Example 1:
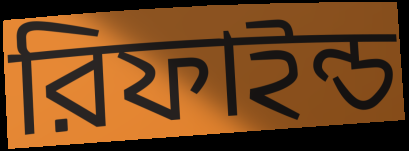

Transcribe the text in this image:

রিফাইন্ড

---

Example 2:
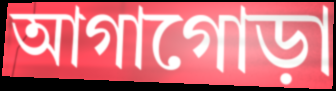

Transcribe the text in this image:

আগাগোড়া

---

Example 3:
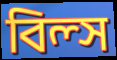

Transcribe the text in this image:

বিল্স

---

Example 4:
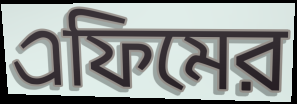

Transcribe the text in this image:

এফিমের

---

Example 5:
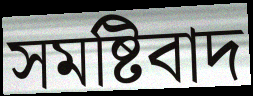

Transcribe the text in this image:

সমষ্টিবাদ